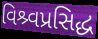
વિશ્ર્વપ્રસિદ્ધ